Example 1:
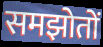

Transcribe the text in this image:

समझोतों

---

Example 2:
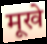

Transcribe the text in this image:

मूखे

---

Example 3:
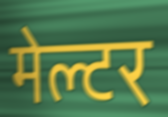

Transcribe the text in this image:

मेल्टर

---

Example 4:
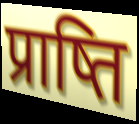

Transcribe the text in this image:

प्राष्ति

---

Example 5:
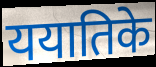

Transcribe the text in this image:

ययातिके